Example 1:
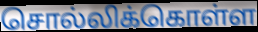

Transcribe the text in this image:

சொல்லிக்கொள்ள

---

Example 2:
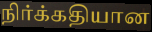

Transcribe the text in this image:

நிர்க்கதியான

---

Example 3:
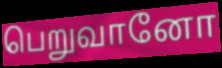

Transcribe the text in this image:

பெறுவானோ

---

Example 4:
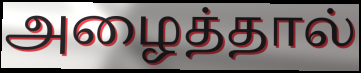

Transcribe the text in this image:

அழைத்தால்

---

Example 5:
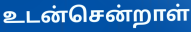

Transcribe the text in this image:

உடன்சென்றாள்